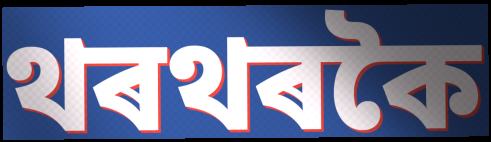
থৰথৰকৈ